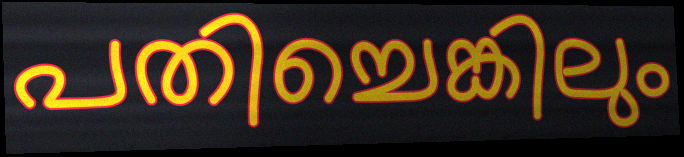
പതിച്ചെങ്കിലും